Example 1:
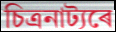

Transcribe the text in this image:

চিত্ৰনাট্যৰে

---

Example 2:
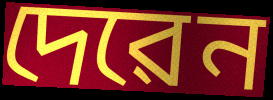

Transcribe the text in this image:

দেৱেন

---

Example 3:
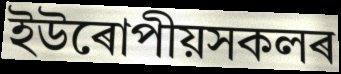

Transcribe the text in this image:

ইউৰোপীয়সকলৰ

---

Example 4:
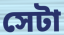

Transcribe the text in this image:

সেটা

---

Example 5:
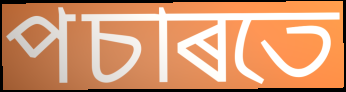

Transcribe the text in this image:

পচাৰতে